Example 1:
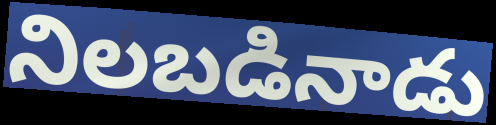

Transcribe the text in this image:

నిలబడినాడు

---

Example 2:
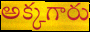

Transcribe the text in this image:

అక్కగారు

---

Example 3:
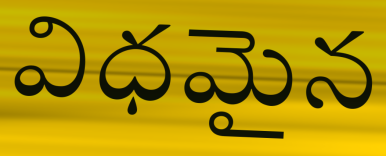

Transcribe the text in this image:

విధమైన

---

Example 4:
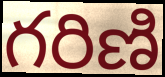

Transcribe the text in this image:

గరిణి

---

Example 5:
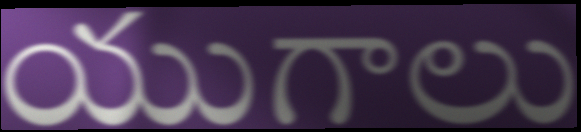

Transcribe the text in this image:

యుగాలు